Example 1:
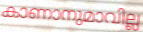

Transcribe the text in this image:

കാണാനുമാവില്ല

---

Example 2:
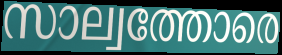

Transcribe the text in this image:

സാല്വത്തോരെ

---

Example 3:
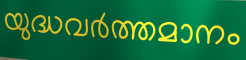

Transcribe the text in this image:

യുദ്ധവർത്തമാനം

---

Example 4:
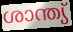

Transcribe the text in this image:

ശാന്ത്യ്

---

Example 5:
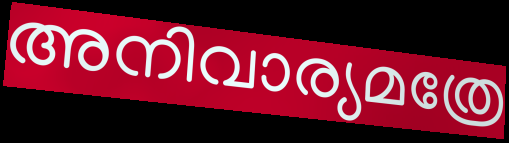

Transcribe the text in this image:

അനിവാര്യമത്രേ